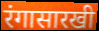
रंगासारखी